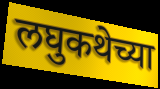
लघुकथेच्या